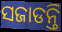
ସଜାଡନ୍ତି